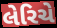
લેરિચે